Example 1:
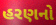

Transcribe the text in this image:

હરણનો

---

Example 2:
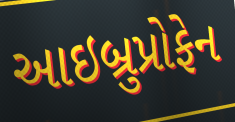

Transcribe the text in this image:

આઇબ્રુપ્રોફેન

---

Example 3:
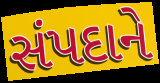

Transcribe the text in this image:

સંપદાને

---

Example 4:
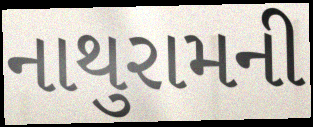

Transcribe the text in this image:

નાથુરામની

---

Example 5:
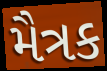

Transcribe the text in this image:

મૈત્રક